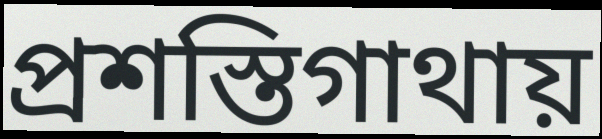
প্রশস্তিগাথায়